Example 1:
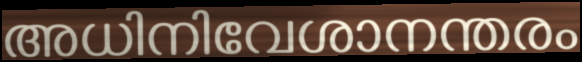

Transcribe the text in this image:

അധിനിവേശാനന്തരം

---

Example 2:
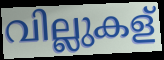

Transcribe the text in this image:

വില്ലുകള്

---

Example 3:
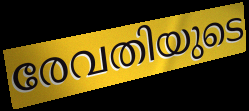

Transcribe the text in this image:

രേവതിയുടെ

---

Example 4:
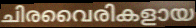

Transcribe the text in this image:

ചിരവൈരികളായ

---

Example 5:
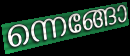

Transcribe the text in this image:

ന്നെങ്ങോ